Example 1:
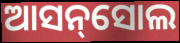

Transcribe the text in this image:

ଆସନ୍‌ସୋଲ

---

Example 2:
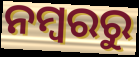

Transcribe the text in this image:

ନମ୍ୱରରୁ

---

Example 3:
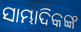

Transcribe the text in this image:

ସାମ୍ଭାଦିକଙ୍କ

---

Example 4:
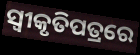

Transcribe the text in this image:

ସ୍ୱୀକୃତିପତ୍ରରେ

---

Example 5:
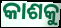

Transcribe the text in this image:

କାଶକୁ